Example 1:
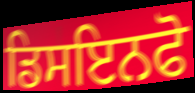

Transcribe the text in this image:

ਡਿਸਇਨਫੋ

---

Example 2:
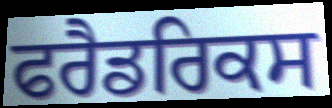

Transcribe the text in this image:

ਫਰੈਡਰਿਕਸ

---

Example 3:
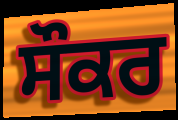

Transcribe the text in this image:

ਸੌਕਰ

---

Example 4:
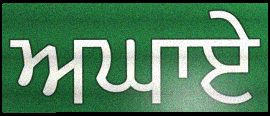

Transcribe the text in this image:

ਅਘਾਏ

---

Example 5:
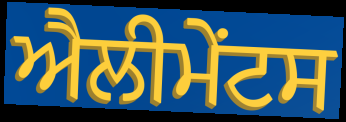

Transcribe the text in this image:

ਐਲੀਮੇੰਟਸ